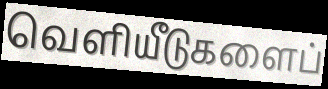
வெளியீடுகளைப்